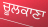
ਚੂਲਕਾਣਾ